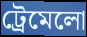
ট্রেমেলো